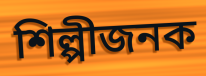
শিল্পীজনক